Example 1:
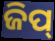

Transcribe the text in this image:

ଜିପ୍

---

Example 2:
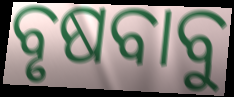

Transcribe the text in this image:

ବୃଷବାବୁ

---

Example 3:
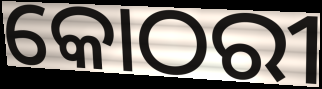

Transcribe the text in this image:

କୋଠରୀ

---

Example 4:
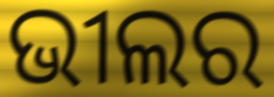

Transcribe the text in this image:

ଭୀଲର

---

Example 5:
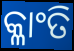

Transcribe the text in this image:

କ୍ଳାଂତି